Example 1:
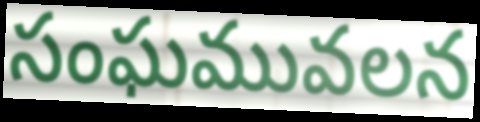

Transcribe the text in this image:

సంఘమువలన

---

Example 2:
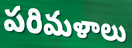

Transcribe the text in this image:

పరిమళాలు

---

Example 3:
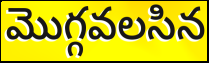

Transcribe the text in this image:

మొగ్గవలసిన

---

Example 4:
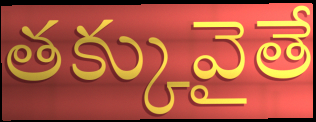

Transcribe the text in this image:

తక్కువైతే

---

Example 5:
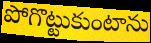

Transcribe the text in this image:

పోగొట్టుకుంటాను